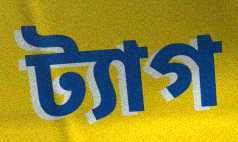
ট্যাগ